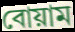
বোয়াম